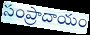
సంప్రాదాయం